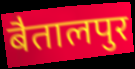
बैतालपुर